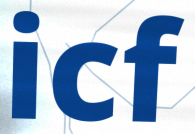
icf